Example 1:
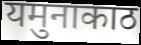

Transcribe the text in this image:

यमुनाकाठ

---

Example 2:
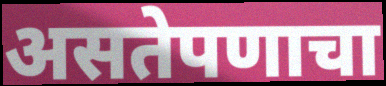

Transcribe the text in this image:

असतेपणाचा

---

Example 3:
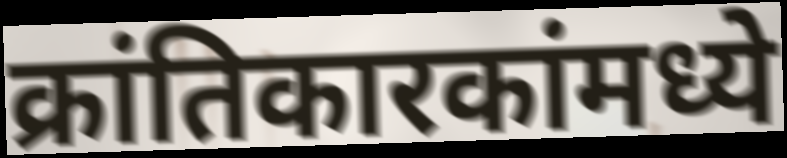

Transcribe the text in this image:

क्रांतिकारकांमध्ये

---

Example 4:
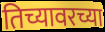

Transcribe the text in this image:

तिच्यावरच्या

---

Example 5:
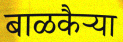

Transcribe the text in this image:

बाळकैऱ्या